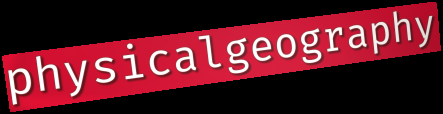
physicalgeography